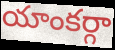
యాంకర్గా